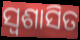
ସ୍ୱଶାସିତ